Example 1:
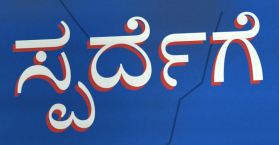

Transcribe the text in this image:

ಸ್ಪರ್ದೆಗೆ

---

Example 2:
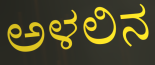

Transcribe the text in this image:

ಅಳಲಿನ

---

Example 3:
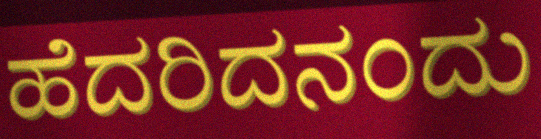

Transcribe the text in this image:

ಹೆದರಿದನಂದು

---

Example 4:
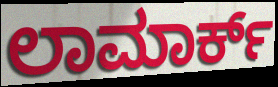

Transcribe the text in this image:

ಲಾಮಾರ್ಕ್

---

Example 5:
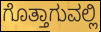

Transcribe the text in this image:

ಗೊತ್ತಾಗುವಲ್ಲಿ